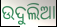
ଉଦୁଲିଆ